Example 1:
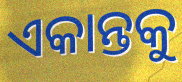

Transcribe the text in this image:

ଏକାନ୍ତକୁ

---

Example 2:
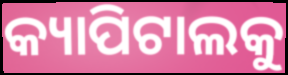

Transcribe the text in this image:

କ୍ୟାପିଟାଲକୁ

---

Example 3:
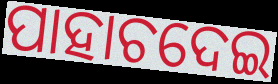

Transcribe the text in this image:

ପାହାଚଦେଇ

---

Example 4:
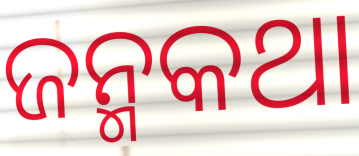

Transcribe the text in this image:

ଜନ୍ମକଥା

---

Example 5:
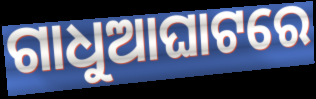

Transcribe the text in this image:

ଗାଧୁଆଘାଟରେ